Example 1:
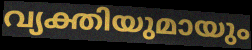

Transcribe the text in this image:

വ്യക്തിയുമായും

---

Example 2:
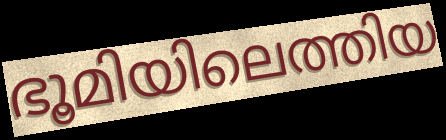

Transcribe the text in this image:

ഭൂമിയിലെത്തിയ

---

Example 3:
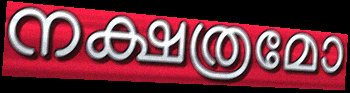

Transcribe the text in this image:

നക്ഷത്രമോ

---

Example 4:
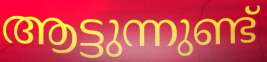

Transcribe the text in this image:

ആട്ടുന്നുണ്ട്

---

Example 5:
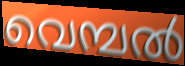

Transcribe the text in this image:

വെമ്പൽ